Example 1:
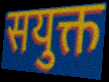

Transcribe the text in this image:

सयुक्त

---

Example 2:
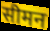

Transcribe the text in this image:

सीमन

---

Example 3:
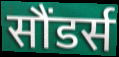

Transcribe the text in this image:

सौंडर्स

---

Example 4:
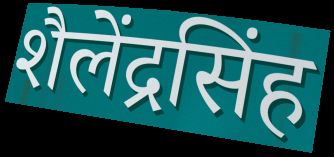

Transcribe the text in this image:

शैलेंद्रसिंह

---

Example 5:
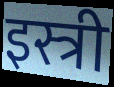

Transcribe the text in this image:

इस्त्री